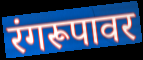
रंगरूपावर